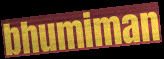
bhumiman